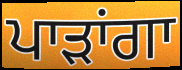
ਪਾੜਾਂਗਾ